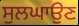
ਸੁਲਘਾਉਣ